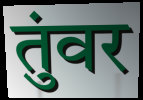
तुंवर